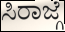
ಸಿರಾಜ್ಗೆ